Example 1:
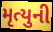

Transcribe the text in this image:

મૃત્યુની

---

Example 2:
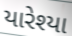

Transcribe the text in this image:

યારેશ્યા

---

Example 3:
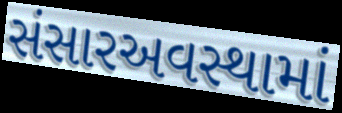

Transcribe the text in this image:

સંસારઅવસ્થામાં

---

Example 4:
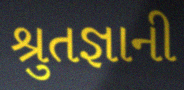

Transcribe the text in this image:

શ્રુતજ્ઞાની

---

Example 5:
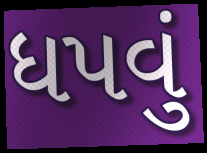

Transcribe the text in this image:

ધપવું